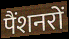
पैंशनरों